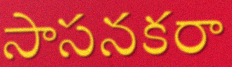
సాసనకరా